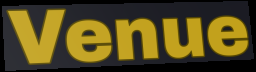
Venue